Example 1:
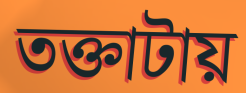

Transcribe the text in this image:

তক্তাটায়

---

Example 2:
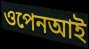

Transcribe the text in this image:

ওপেনআই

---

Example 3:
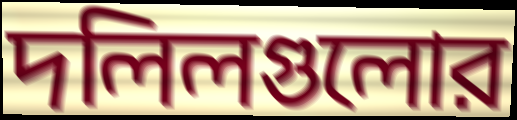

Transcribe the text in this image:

দলিলগুলোর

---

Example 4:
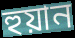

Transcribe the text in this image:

হুয়ান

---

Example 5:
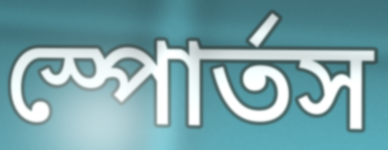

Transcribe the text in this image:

স্পোর্তস